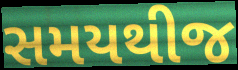
સમયથીજ